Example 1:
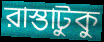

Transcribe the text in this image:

রাস্তাটুকু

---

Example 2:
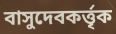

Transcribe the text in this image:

বাসুদেবকর্ত্তৃক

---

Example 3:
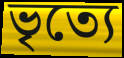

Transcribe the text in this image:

ভৃত্যে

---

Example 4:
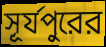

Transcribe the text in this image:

সূর্যপুরের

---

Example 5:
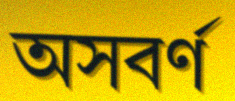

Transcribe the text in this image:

অসবর্ণ